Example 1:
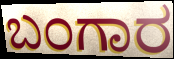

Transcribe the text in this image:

ಬಂಗಾರ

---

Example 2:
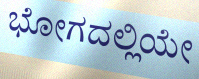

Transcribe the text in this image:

ಭೋಗದಲ್ಲಿಯೇ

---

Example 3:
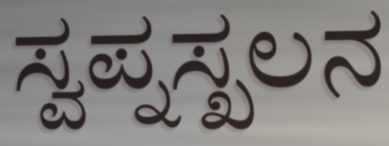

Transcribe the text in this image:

ಸ್ವಪ್ನಸ್ಖಲನ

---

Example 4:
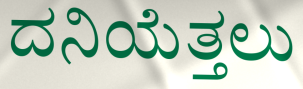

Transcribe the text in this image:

ದನಿಯೆತ್ತಲು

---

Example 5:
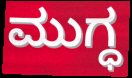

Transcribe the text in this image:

ಮುಗ್ಧ